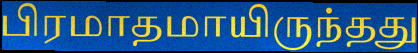
பிரமாதமாயிருந்தது